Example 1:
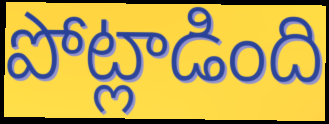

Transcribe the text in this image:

పోట్లాడింది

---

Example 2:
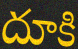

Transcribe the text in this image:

దూకి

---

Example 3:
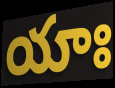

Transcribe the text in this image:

యాః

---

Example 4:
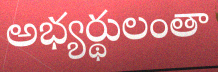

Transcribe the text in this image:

అభ్యర్థులంతా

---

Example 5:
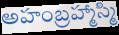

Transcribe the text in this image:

అహంబ్రహ్మాస్మి